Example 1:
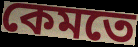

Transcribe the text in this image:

কেমতে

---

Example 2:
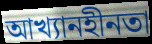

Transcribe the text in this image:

আখ্যানহীনতা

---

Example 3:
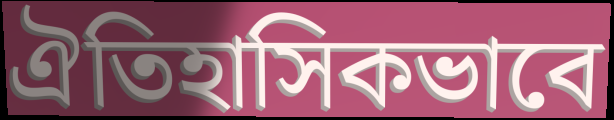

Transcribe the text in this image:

ঐতিহাসিকভাবে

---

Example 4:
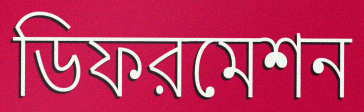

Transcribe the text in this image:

ডিফরমেশন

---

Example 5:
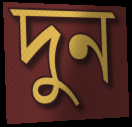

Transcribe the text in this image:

দুন